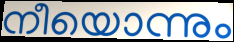
നീയൊന്നും